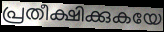
പ്രതീക്ഷിക്കുകയേ